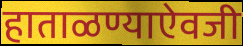
हाताळण्याऐवजी